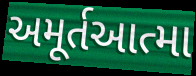
અમૂર્તઆત્મા